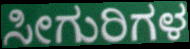
ಸೀಗುರಿಗಳ